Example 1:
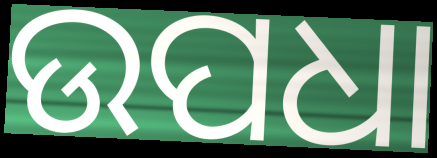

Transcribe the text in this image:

ଉପଧା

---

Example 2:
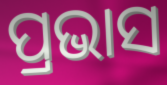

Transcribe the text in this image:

ପ୍ରଭାସ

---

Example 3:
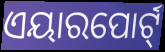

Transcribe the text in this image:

ଏୟାରପୋର୍ଟ୍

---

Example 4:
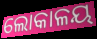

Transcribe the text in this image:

ଲୋକାଳୟ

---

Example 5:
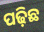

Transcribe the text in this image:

ପଢ଼ିଛ